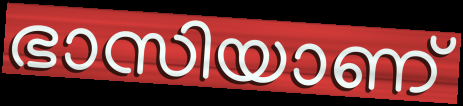
ഭാസിയാണ്